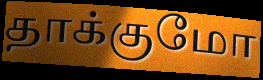
தாக்குமோ